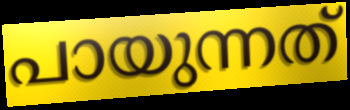
പായുന്നത്